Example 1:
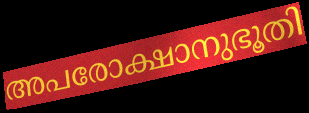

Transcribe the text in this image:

അപരോക്ഷാനുഭൂതി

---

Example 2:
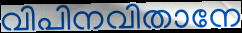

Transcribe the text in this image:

വിപിനവിതാനേ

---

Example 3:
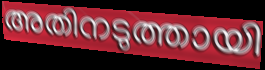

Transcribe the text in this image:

അതിനടുത്തായി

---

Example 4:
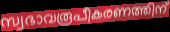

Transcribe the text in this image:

സ്വഭാവരൂപീകരണത്തിന്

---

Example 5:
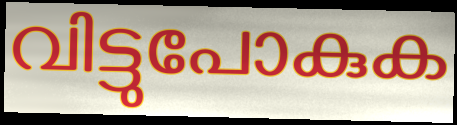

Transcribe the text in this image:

വിട്ടുപോകുക